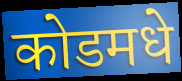
कोडमधे